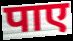
पाए